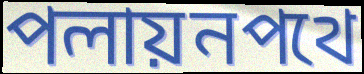
পলায়নপথে